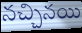
నచ్చినయి